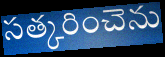
సత్కరించెను